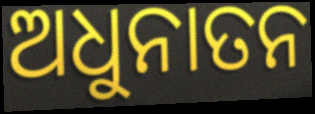
ଅଧୁନାତନ